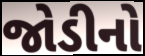
જોડીનો